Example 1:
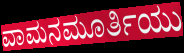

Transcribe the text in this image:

ವಾಮನಮೂರ್ತಿಯು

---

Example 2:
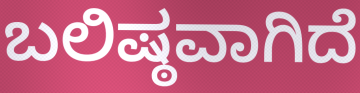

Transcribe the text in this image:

ಬಲಿಷ್ಠವಾಗಿದೆ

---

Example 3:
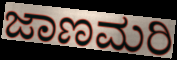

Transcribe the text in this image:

ಜಾಣಮರಿ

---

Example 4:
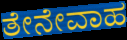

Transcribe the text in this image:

ತೇನೇವಾಹ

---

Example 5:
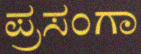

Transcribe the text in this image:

ಪ್ರಸಂಗಾ